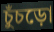
চুঁচড়ো